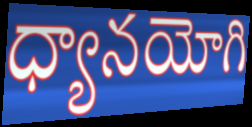
ధ్యానయోగి